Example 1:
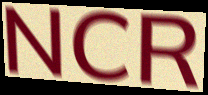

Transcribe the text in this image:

NCR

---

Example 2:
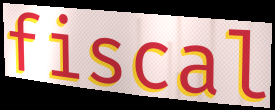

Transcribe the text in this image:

fiscal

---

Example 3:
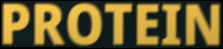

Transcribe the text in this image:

PROTEIN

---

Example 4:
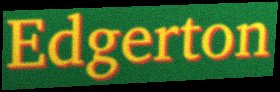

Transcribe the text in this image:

Edgerton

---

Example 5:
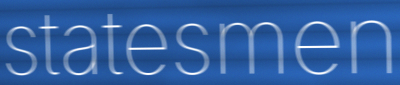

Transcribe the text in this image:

statesmen